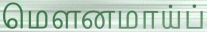
மௌனமாய்ப்